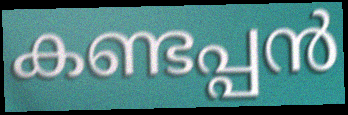
കണ്ടപ്പൻ